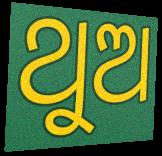
ଥୁଅ